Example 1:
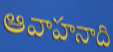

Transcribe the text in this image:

ఆవాహనాది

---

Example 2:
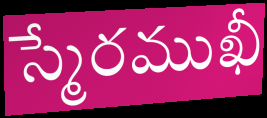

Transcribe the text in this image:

స్మేరముఖీ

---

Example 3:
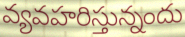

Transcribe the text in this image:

వ్యవహరిస్తున్నందు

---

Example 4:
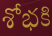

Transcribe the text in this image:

శోభకి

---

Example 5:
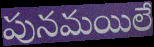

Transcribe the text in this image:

పునమయిలే